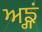
ਅਙ੍ਗਂ